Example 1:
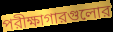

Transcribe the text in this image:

পরীক্ষাগারগুলোর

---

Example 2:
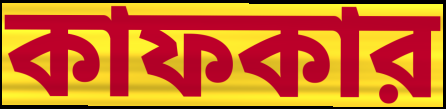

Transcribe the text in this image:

কাফকার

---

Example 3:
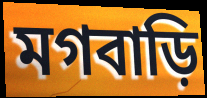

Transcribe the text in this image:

মগবাড়ি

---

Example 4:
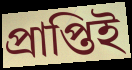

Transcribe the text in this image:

প্রাপ্তিই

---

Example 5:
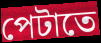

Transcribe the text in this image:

পেটাতে